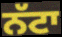
ਨੱਟਾ